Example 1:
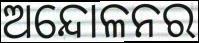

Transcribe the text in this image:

ଅନ୍ଦୋଳନର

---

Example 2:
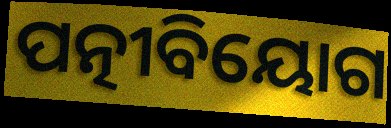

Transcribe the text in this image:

ପତ୍ନୀବିୟୋଗ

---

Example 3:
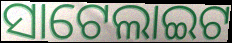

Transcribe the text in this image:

ସାଟେଲାଇଟ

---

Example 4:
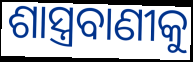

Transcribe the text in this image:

ଶାସ୍ତ୍ରବାଣୀକୁ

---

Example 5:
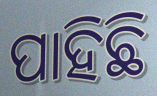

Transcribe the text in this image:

ପାହିଛି